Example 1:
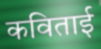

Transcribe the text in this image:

कविताई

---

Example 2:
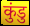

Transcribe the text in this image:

कुंडु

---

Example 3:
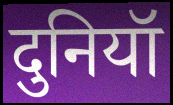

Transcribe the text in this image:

दुनियॉ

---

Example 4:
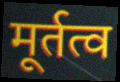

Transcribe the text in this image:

मूर्तत्व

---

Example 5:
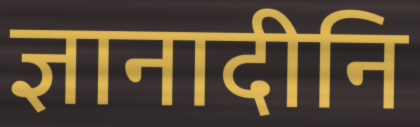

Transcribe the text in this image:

ज्ञानादीनि